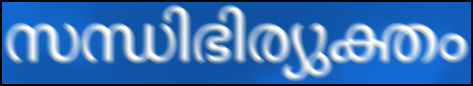
സന്ധിഭിര്യുക്തം